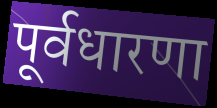
पूर्वधारणा